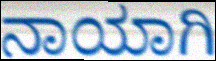
ನಾಯಾಗಿ